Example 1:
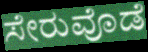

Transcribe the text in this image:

ಸೇರುವೊಡೆ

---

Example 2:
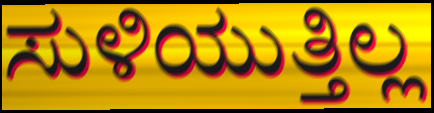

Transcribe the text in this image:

ಸುಳಿಯುತ್ತಿಲ್ಲ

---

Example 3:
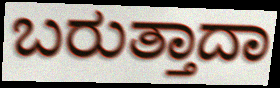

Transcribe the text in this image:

ಬರುತ್ತಾದಾ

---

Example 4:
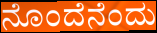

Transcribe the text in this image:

ನೊಂದೆನೆಂದು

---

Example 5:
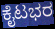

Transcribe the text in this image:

ಕೈಟಭರ